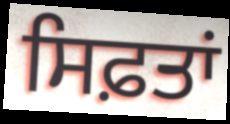
ਸਿਫ਼ਤਾਂ